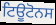
ਟਿਊਟੋਨਸ